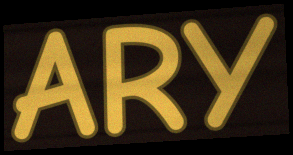
ARY